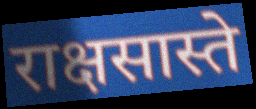
राक्षसास्ते